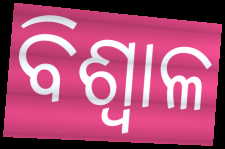
ବିଶ୍ୱାଳ